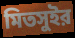
মিতসুইর